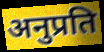
अनुप्रति